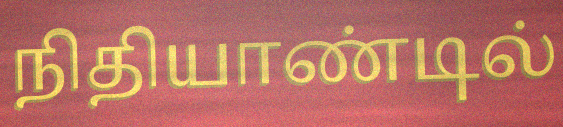
நிதியாண்டில்